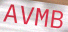
AVMB